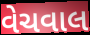
વેચવાલ